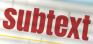
subtext